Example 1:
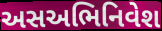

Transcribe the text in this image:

અસઅભિનિવેશ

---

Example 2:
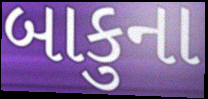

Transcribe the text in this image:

બાકુના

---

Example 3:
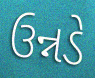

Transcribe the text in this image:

ઉન્નડે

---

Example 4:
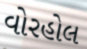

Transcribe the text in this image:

વોરહોલ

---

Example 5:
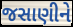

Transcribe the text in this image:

જસાણીને